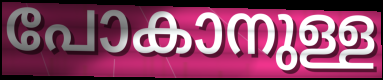
പോകാനുള്ള